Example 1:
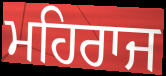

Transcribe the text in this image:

ਮਹਿਰਾਜ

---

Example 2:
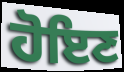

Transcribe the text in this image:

ਹੋਇਣ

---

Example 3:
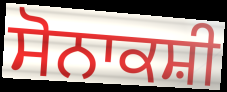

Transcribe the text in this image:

ਸੋਨਾਕਸ਼ੀ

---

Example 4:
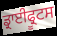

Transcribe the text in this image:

ਡ੍ਰਾਈਫ੍ਰੂਟਸ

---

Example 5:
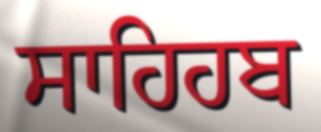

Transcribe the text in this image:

ਸਾਹਿਹਬ